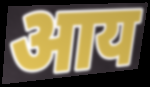
आय